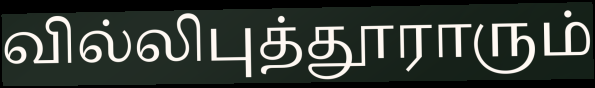
வில்லிபுத்தூராரும்